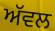
ਅੱਵਲ